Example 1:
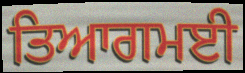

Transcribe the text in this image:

ਤਿਆਗਮਈ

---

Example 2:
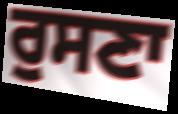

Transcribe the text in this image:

ਰੁਸਣਾ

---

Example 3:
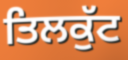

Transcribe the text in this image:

ਤਿਲਕੁੱਟ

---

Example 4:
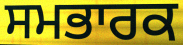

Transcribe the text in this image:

ਸਮਭਾਰਕ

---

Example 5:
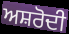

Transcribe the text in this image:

ਅਸ਼ਰੋਦੀ